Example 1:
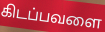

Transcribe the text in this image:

கிடப்பவளை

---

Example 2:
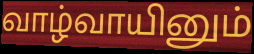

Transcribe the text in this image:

வாழ்வாயினும்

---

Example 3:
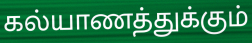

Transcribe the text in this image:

கல்யாணத்துக்கும்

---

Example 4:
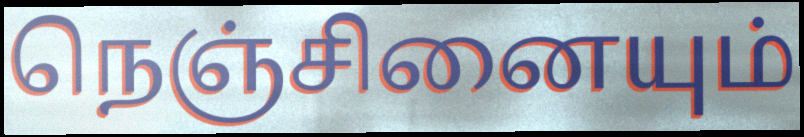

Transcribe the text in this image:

நெஞ்சினையும்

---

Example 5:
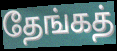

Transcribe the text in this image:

தேங்கத்